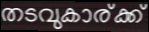
തടവുകാര്ക്ക്